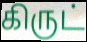
கிருட்